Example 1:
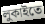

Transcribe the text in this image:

লুকাইতে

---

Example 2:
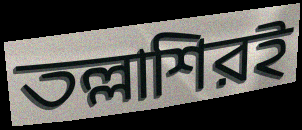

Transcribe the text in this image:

তল্লাশিরই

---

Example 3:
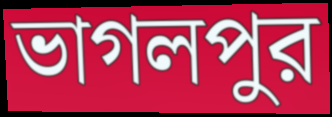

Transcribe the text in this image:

ভাগলপুর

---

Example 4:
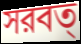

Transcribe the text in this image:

সরবত্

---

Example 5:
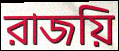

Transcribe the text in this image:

রাজয়ি